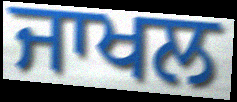
ਜਾਖਲ